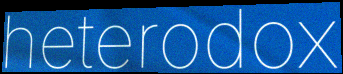
heterodox